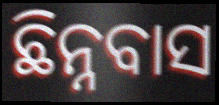
ଛିନ୍ନବାସ